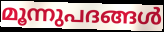
മൂന്നുപദങ്ങൾ